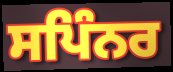
ਸਪਿੰਨਰ